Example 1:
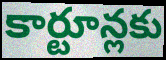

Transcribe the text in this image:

కార్టూన్లకు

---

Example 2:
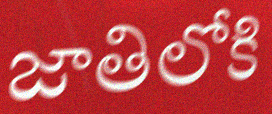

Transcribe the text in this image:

జాతిలోకి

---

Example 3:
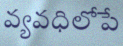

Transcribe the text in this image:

వ్యవధిలోపే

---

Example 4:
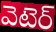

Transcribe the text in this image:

వెటెర్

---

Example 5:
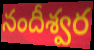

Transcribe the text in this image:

నందీశ్వర